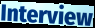
Interview